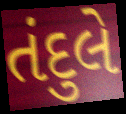
તંદુલે